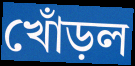
খোঁড়ল